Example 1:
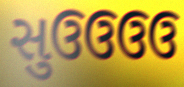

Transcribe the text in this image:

સુઉઉઉઉ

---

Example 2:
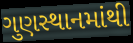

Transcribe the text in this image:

ગુણસ્થાનમાંથી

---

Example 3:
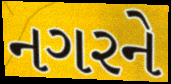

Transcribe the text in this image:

નગરને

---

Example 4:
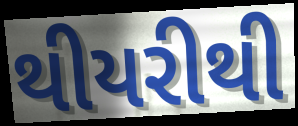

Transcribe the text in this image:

થીયરીથી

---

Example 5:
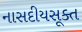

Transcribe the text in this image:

નાસદીયસૂક્ત